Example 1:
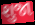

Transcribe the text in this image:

શુજા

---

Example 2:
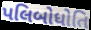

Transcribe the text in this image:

પલિબોધોતિ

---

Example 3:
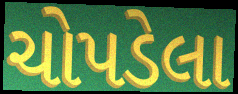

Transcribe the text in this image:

ચોપડેલા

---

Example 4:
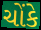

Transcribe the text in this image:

ચોંકે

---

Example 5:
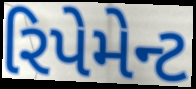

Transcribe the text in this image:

રિપેમેન્ટ